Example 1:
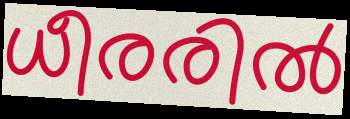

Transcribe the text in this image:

ധീരരിൽ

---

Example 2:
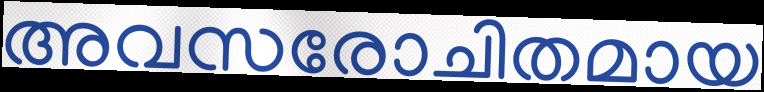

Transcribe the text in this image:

അവസരോചിതമായ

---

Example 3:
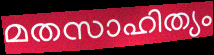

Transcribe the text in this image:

മതസാഹിത്യം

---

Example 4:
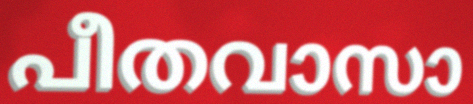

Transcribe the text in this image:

പീതവാസാ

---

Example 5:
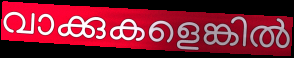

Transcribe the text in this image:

വാക്കുകളെങ്കിൽ